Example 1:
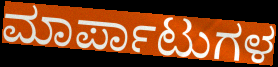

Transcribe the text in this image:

ಮಾರ್ಪಾಟುಗಳ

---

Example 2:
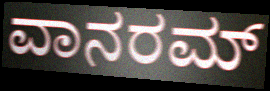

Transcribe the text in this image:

ವಾನರಮ್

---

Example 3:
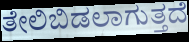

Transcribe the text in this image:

ತೇಲಿಬಿಡಲಾಗುತ್ತದೆ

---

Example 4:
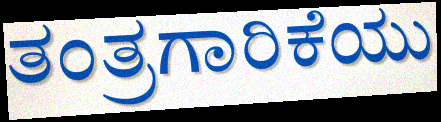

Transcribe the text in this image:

ತಂತ್ರಗಾರಿಕೆಯು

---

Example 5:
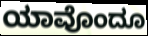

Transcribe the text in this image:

ಯಾವೊಂದೂ